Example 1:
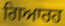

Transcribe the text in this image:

ਗਿਆਰਹ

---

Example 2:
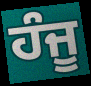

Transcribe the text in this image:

ਹੰਜੂ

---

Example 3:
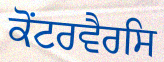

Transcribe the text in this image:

ਕੋਂਟਰਵੈਰਸਿ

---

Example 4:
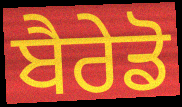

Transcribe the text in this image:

ਬੈਰੇਡੋ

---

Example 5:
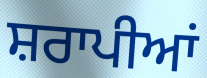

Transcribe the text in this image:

ਸ਼ਰਾਪੀਆਂ